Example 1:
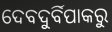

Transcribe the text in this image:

ଦେବଦୁର୍ବିପାକରୁ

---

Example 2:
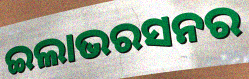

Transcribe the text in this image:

ଇଲାଭରସନର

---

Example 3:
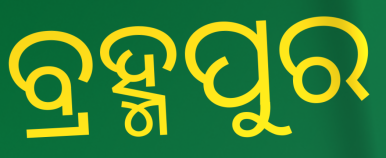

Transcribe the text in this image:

ବ୍ରହ୍ମପୁର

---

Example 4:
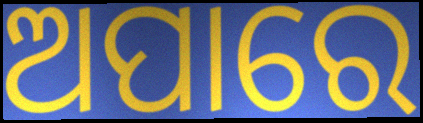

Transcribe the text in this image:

ଅପାରେ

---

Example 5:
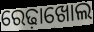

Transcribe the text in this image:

ରେଢ଼ାଖୋଲ